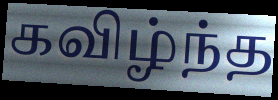
கவிழ்ந்த